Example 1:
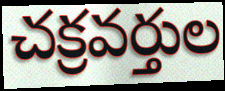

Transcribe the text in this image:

చక్రవర్తుల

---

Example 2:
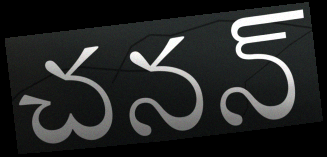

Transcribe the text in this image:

చనన్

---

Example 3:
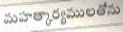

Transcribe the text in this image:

మహత్కార్యములతోను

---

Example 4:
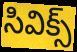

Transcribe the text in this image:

సివిక్స్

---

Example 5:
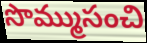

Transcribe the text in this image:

సొమ్ముసంచి